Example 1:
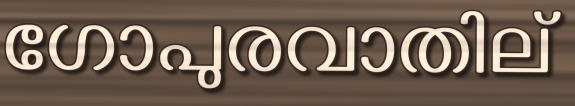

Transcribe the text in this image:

ഗോപുരവാതില്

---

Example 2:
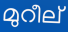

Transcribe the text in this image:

മുറീല്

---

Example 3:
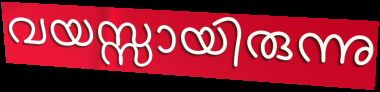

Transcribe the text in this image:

വയസ്സായിരുന്നു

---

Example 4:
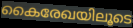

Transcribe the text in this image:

കൈരേഖയിലൂടെ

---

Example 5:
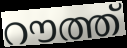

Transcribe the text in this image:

റൗത്ത്